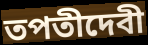
তপতীদেবী